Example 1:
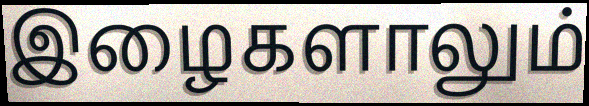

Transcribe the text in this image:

இழைகளாலும்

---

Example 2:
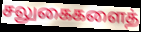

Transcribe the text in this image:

சலுகைகளைத்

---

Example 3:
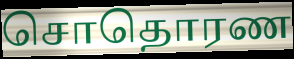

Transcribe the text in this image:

சொதொரண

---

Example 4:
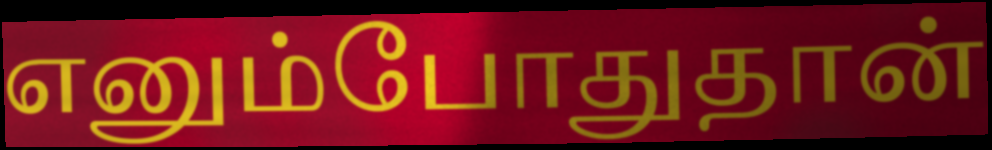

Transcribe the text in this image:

எனும்போதுதான்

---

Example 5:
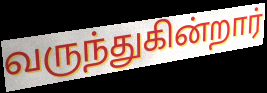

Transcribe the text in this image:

வருந்துகின்றார்